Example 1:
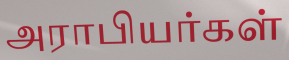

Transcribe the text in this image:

அராபியர்கள்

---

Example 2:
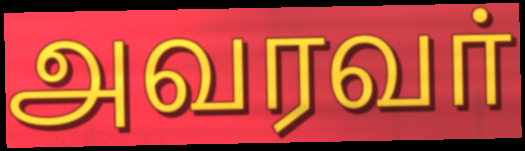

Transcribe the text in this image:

அவரவர்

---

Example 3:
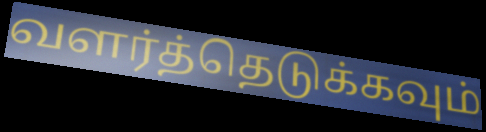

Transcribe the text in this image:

வளர்த்தெடுக்கவும்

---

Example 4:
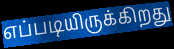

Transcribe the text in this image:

எப்படியிருக்கிறது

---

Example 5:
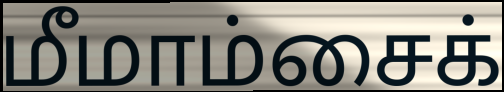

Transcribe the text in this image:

மீமாம்சைக்